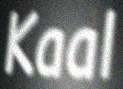
Kaal